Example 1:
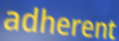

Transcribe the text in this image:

adherent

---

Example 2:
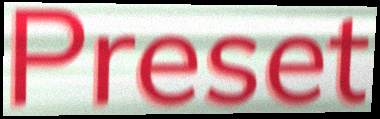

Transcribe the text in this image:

Preset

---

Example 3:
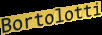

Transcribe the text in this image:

Bortolotti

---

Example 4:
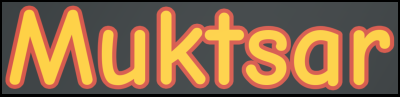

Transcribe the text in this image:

Muktsar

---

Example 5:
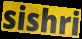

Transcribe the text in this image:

sishri